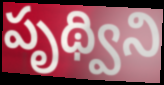
పృథ్విని